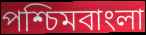
পশ্চিমবাংলা